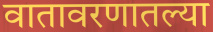
वातावरणातल्या